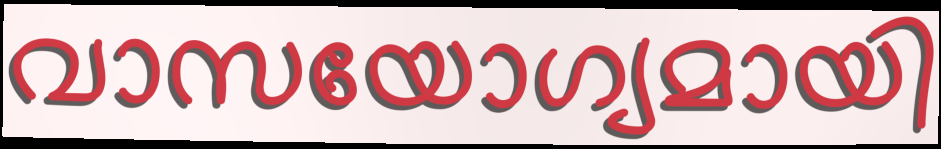
വാസയോഗ്യമായി